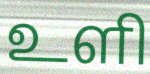
உளி